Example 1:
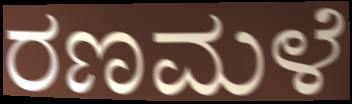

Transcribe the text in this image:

ರಣಮಳೆ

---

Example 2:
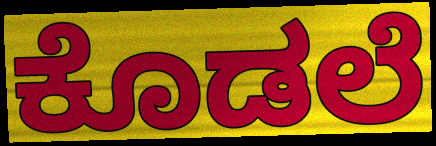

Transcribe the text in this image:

ಕೊಡಲೆ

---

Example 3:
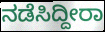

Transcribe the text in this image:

ನಡೆಸಿದ್ದೀರಾ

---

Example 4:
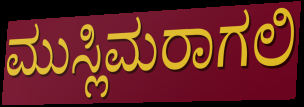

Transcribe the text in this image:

ಮುಸ್ಲಿಮರಾಗಲಿ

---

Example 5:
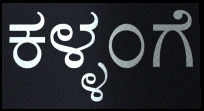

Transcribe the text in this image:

ಕಳ್ಳಂಗೆ